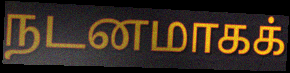
நடனமாகக்